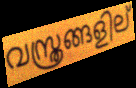
വസ്ത്രങ്ങളില്